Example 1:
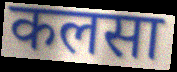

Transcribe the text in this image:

कलसा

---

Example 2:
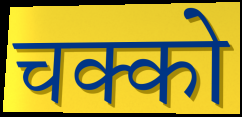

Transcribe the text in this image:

चक्को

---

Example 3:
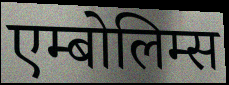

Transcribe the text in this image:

एम्बोलिम्स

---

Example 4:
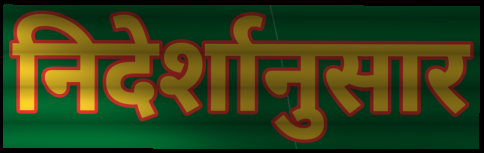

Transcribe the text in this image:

निदेर्शानुसार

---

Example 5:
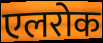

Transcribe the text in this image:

एलरोक